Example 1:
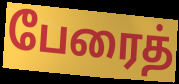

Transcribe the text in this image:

பேரைத்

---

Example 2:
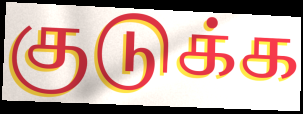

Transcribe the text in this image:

குடுக்க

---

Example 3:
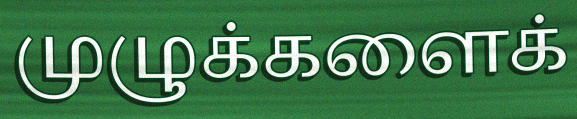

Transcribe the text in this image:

முழுக்களைக்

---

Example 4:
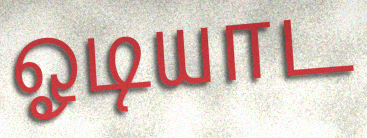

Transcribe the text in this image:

ஓடியாட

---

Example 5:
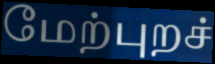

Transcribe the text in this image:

மேற்புறச்